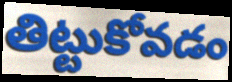
తిట్టుకోవడం